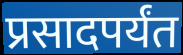
प्रसादपर्यंत